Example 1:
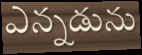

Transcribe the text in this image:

ఎన్నడును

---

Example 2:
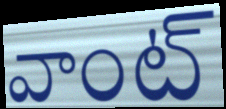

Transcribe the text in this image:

వాంట్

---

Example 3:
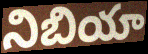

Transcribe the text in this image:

నిబియా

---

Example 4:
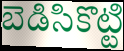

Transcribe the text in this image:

బెడిసికొట్టి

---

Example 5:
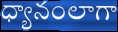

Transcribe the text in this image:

ధ్యానంలాగా